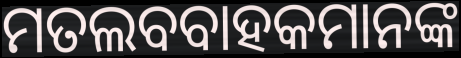
ମତଲବବାହକମାନଙ୍କ